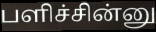
பளிச்சின்னு